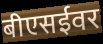
बीएसईवर